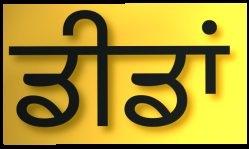
ਡੀਡਾਂ